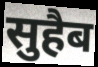
सुहैब